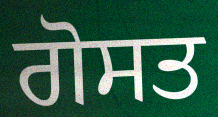
ਗੋਸਤ